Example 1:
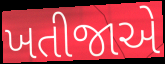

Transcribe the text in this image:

ખતીજાએ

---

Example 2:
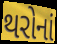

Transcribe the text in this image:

થરોનાં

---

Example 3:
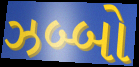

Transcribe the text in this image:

ઝબ્બો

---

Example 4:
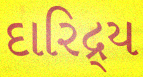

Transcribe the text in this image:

દારિદ્ર્ય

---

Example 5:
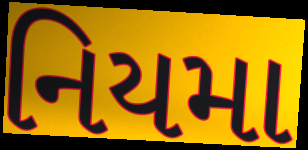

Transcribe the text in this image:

નિયમા